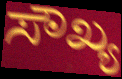
ಸೌಖ್ಯ